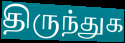
திருந்துக